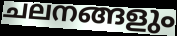
ചലനങ്ങളും